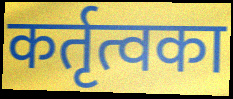
कर्तृत्वका